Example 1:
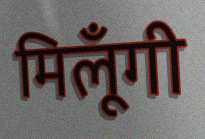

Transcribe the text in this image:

मिलूँगी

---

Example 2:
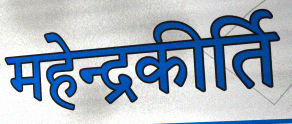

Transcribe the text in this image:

महेन्द्रकीर्ति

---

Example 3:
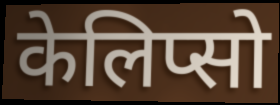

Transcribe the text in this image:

केलिप्सो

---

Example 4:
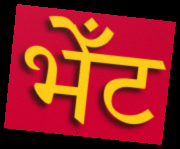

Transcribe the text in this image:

भेँट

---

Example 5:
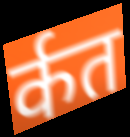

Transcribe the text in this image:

र्कत